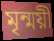
মৃন্ময়ী